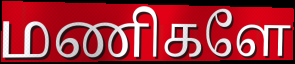
மணிகளே